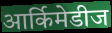
आर्किमेडीज